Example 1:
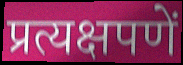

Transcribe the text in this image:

प्रत्यक्षपणें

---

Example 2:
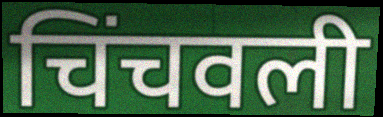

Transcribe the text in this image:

चिंचवली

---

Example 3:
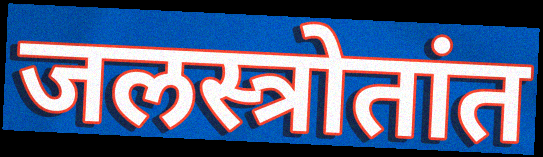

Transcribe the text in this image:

जलस्त्रोतांत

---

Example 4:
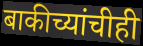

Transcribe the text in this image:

बाकीच्यांचीही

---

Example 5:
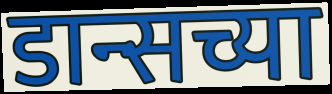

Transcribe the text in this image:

डान्सच्या